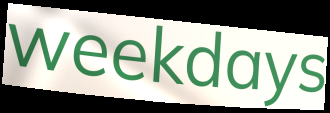
weekdays